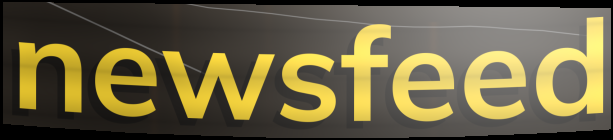
newsfeed